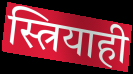
स्त्रियाही